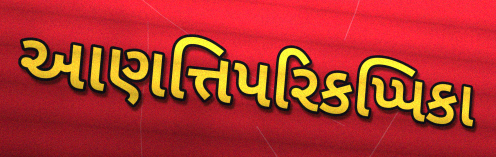
આણત્તિપરિકપ્પિકા